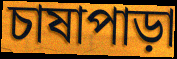
চাষাপাড়া